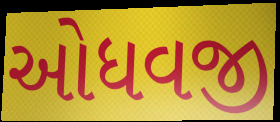
ઓધવજી